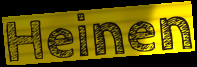
Heinen